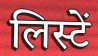
लिस्टें